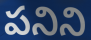
పనిని